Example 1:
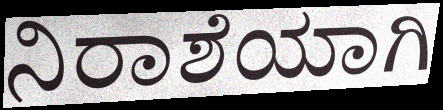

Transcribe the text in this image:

ನಿರಾಶೆಯಾಗಿ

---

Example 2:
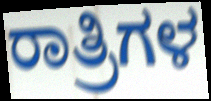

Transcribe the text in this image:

ರಾತ್ರಿಗಳ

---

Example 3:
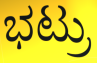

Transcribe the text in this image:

ಭಟ್ರು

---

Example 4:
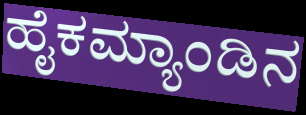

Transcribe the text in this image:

ಹೈಕಮ್ಯಾಂಡಿನ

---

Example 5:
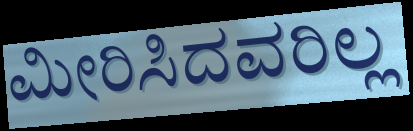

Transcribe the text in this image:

ಮೀರಿಸಿದವರಿಲ್ಲ